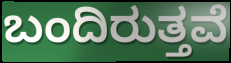
ಬಂದಿರುತ್ತವೆ